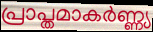
പ്രാപ്തമാകർണ്ണ്യ